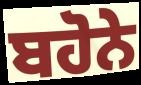
ਬਹੋਨੇ